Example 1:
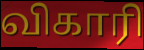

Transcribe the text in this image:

விகாரி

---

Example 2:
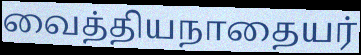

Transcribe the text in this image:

வைத்தியநாதையர்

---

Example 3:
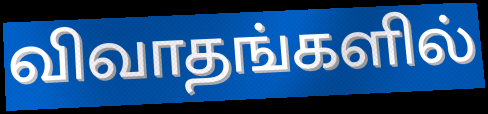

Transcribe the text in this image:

விவாதங்களில்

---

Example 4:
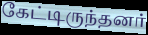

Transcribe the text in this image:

கேட்டிருந்தனர்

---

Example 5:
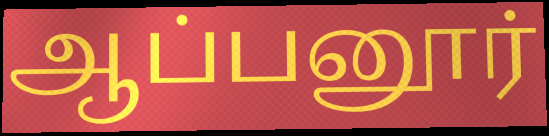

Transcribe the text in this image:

ஆப்பனூர்